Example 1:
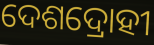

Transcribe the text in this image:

ଦେଶଦ୍ରୋହୀ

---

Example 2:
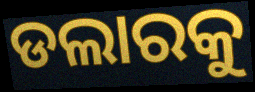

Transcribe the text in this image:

ଡଲାରକୁ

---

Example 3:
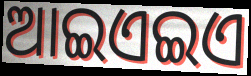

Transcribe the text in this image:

ଆଇଏଇଏ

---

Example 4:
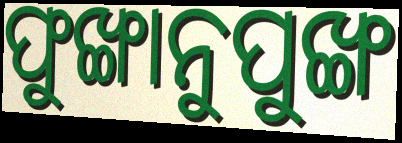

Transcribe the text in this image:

ଫୁଙ୍ଖାନୁପୁଙ୍ଖ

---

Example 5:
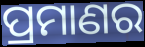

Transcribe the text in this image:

ପ୍ରମାଣର